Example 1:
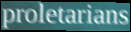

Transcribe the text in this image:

proletarians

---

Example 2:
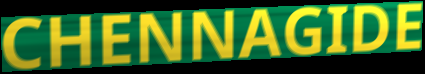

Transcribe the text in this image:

CHENNAGIDE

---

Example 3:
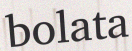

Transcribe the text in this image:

bolata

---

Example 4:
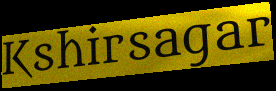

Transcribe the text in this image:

Kshirsagar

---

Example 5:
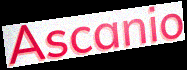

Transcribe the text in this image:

Ascanio